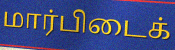
மார்பிடைக்